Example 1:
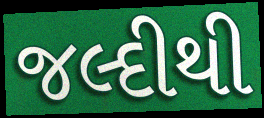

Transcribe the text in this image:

જલ્દીથી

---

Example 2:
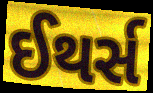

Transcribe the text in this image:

ઈથર્સ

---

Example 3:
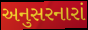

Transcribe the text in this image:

અનુસરનારાં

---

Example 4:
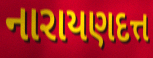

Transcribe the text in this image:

નારાયણદત્ત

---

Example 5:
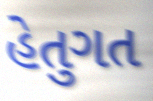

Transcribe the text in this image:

હેતુગત